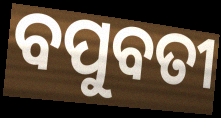
ବପୁବତୀ